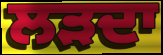
ਲੜਦਾ